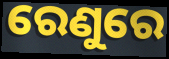
ରେଣୁରେ